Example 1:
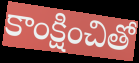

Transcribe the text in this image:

కాంక్షించితో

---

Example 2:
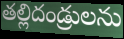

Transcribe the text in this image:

తల్లిదండ్రులను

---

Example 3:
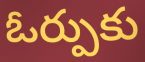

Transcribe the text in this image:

ఓర్పుకు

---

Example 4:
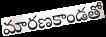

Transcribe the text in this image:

మారణకాండతో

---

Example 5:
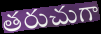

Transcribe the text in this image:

తరుచుగా